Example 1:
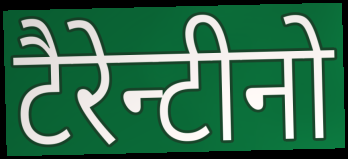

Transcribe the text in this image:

टैरेन्टीनो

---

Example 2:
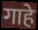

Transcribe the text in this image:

गाहे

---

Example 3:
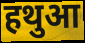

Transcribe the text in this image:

हथुआ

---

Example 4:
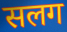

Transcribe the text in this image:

सलग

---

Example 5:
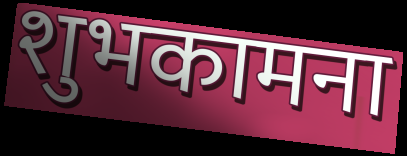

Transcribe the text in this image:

शुभकामना